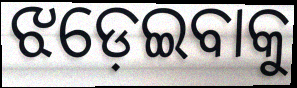
ଝଡ଼େଇବାକୁ